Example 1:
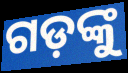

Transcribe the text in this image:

ଗଡ଼ଙ୍କୁ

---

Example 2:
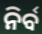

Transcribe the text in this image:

ନିର୍ବ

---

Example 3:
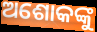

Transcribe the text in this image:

ଅଶୋକଙ୍କୁ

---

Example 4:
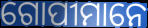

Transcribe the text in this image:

ଗୋପୀମାନେ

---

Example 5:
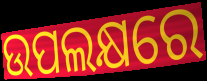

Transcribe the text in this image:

ଉପଲକ୍ଷରେ